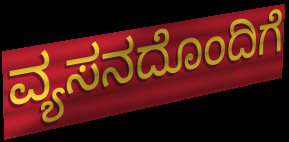
ವ್ಯಸನದೊಂದಿಗೆ